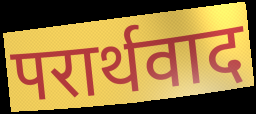
परार्थवाद